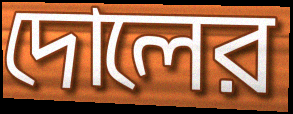
দোলের